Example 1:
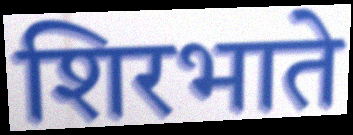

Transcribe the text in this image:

शिरभाते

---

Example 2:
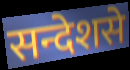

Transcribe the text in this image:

सन्देशसे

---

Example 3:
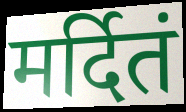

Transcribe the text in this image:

मर्दितं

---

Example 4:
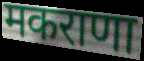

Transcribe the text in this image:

मकराणा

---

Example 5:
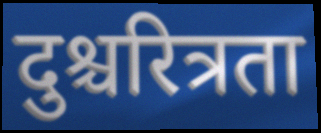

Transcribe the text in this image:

दुश्चरित्रता